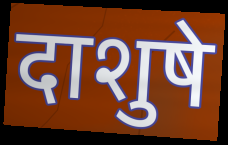
दाशुषे